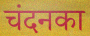
चंदनका